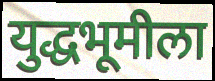
युद्धभूमीला